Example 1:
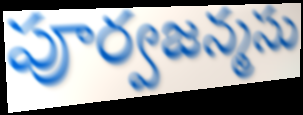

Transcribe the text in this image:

పూర్వజన్మసు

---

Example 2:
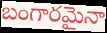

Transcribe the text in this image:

బంగారమైనా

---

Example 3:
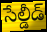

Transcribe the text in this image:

సేల్డీడ్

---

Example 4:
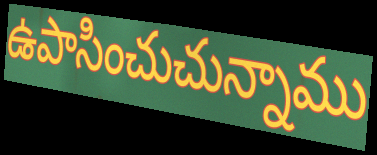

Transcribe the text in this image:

ఉపాసించుచున్నాము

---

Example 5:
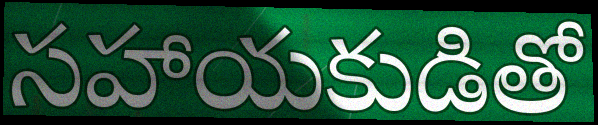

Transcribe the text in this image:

సహాయకుడితో